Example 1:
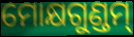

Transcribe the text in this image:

ମୋକ୍ଷଗୁଣ୍ଡମ୍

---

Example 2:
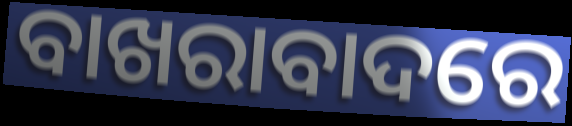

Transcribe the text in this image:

ବାଖରାବାଦରେ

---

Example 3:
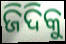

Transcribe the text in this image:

ଜିଦିକୁ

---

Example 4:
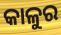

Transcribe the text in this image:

କାଳୁର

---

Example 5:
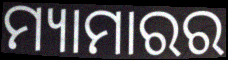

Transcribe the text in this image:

ମ୍ୟାମାରର